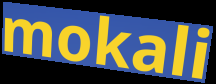
mokali